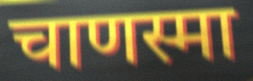
चाणस्मा